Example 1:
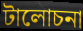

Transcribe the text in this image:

টালোচনা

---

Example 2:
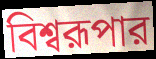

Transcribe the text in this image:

বিশ্বরূপার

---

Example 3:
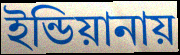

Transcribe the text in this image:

ইন্ডিয়ানায়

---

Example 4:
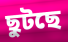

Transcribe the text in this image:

ছুটছে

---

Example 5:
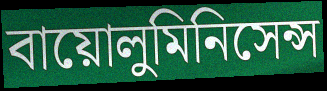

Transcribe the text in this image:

বায়োলুমিনিসেন্স